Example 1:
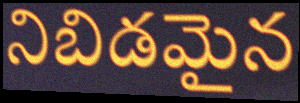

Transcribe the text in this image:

నిబిడమైన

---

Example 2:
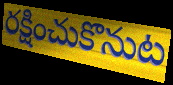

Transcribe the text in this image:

రక్షించుకొనుట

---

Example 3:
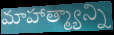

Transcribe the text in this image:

మాహాత్మ్యాన్ని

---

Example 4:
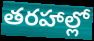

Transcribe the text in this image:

తరహాల్లో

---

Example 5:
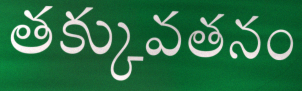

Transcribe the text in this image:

తక్కువతనం